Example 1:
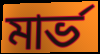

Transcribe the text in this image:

মার্ভ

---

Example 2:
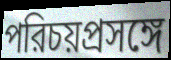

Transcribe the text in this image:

পরিচয়প্রসঙ্গে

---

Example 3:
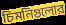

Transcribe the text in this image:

চিমনিগুলোর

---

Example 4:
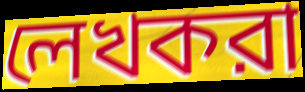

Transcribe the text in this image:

লেখকরা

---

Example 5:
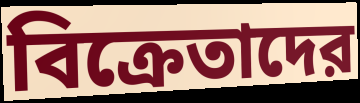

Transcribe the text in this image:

বিক্রেতাদের